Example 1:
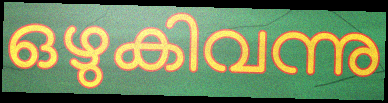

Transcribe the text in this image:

ഒഴുകിവന്നു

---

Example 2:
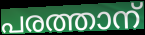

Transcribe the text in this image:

പരത്താന്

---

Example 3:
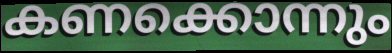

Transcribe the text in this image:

കണക്കൊന്നും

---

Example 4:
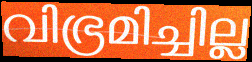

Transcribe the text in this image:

വിഭ്രമിച്ചില്ല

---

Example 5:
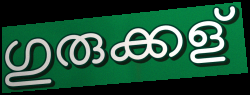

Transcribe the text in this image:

ഗുരുക്കള്